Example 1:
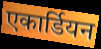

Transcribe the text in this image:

एकार्डियन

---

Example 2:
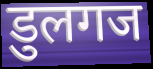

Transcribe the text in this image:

डुलगज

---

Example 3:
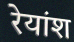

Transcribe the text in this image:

रेयांश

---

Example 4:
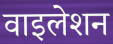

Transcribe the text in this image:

वाइलेशन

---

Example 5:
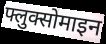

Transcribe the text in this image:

फ्लुक्सोमाइन